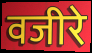
वजीरे